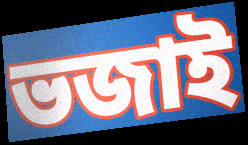
ভজাই